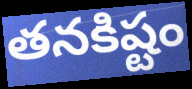
తనకిష్టం